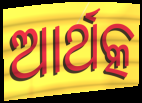
ଆର୍ଥତ୍କ